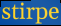
stirpe